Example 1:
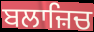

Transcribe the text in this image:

ਬਲਾਜ਼ਿਚ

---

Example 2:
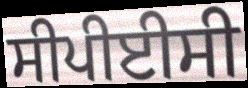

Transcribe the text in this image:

ਸੀਪੀਈਸੀ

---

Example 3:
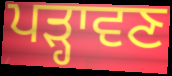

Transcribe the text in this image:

ਪੜ੍ਹਾਵਣ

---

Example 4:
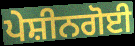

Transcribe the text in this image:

ਪੇਸ਼ੀਨਗੋਈ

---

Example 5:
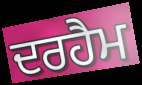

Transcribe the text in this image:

ਦਰਹੈਮ